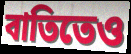
বাতিতেও